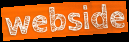
webside